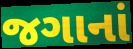
જગાનાં